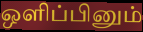
ஒளிப்பினும்